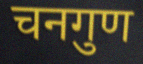
चनगुण